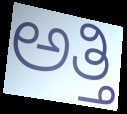
ಅತ್ತಿ